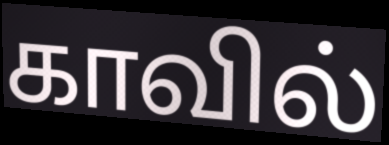
காவில்